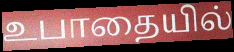
உபாதையில்